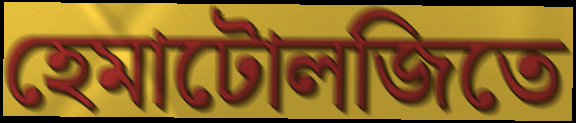
হেমাটোলজিতে